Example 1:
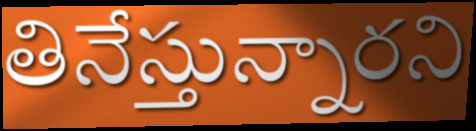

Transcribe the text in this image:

తినేస్తున్నారని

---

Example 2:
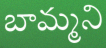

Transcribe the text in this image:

బామ్మని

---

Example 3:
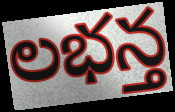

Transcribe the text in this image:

లభన్త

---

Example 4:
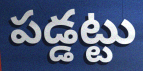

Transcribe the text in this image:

పడ్డట్టు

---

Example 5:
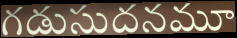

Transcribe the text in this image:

గడుసుదనమూ